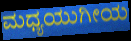
ಮಧ್ಯಯುಗೀಯ